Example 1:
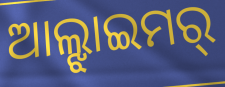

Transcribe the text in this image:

ଆଲ୍ଝାଇମର୍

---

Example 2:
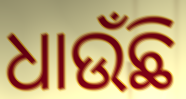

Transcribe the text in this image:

ଧାଉଁଛି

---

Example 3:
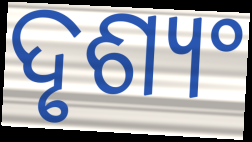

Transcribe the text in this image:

ଦୃଶ୍ୟଂ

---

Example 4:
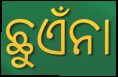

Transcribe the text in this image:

ଛୁଏଁନା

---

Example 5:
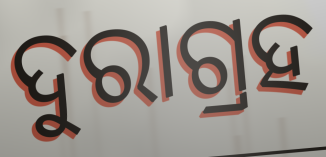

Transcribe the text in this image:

ଦୁରାଗ୍ରହ